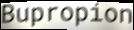
Bupropion